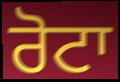
ਰੋਟਾ